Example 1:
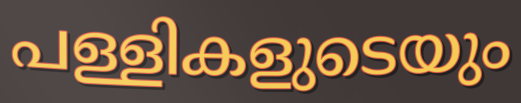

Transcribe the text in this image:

പള്ളികളുടെയും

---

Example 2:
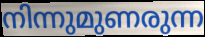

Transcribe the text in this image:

നിന്നുമുണരുന്ന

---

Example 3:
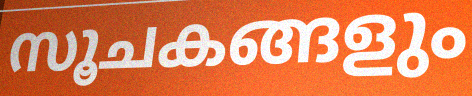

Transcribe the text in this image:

സൂചകങ്ങളും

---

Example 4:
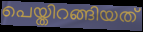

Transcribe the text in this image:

പെയ്തിറങ്ങിയത്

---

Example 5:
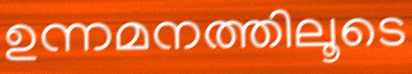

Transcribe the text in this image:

ഉന്നമനത്തിലൂടെ